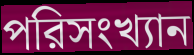
পরিসংখ্যান